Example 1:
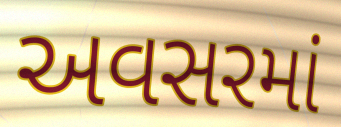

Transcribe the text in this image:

અવસરમાં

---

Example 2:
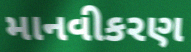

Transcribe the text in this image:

માનવીકરણ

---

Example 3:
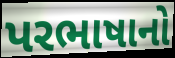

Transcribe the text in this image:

પરભાષાનો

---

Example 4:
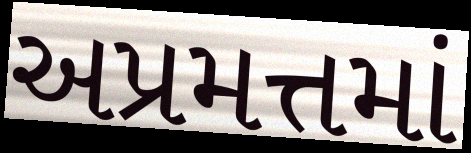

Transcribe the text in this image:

અપ્રમત્તમાં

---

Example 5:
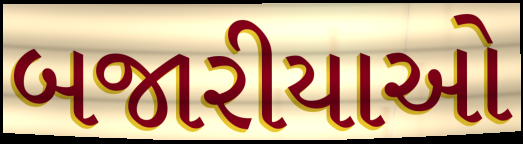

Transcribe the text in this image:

બજારીયાઓ